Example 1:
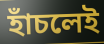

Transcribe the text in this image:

হাঁচলেই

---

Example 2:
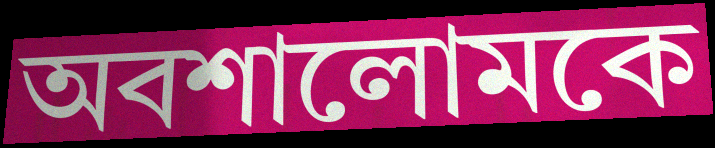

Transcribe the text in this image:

অবশালোমকে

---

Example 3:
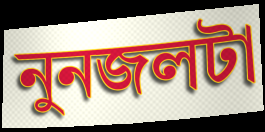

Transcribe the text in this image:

নুনজলটা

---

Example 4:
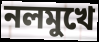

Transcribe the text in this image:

নলমুখে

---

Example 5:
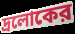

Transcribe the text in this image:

দ্রলোকের